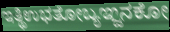
ಇತ್ಥಿಉಭತೋಬ್ಯಞ್ಜನಕೋ